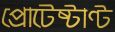
প্রোটেষ্টাণ্ট